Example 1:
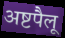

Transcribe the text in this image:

अष्टपैलू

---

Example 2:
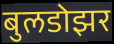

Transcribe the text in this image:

बुलडोझर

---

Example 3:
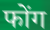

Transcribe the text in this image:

फोंग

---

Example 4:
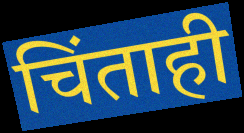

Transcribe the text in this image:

चिंताही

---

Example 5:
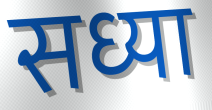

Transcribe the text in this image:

सध्या